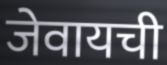
जेवायची